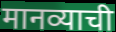
मानव्याची